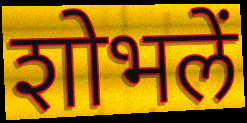
शोभलें